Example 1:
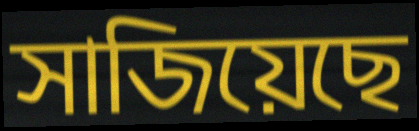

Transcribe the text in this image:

সাজিয়েছে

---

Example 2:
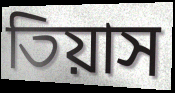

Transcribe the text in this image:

তিয়াস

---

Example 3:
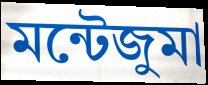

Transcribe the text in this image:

মন্টেজুমা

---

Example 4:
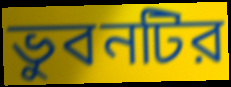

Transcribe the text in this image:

ভুবনটির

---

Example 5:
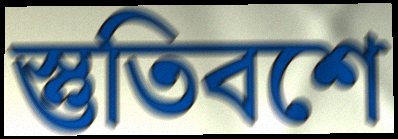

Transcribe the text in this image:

স্তুতিবশে